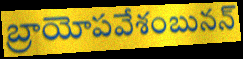
బ్రాయోపవేశంబునన్